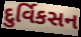
દુર્વિકસન